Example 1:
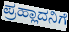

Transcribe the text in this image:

ಪ್ರಹ್ಲಾದನಿಗೆ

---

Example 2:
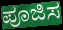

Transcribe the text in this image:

ಪೂಜಿಸ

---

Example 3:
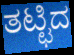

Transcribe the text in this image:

ತಟ್ಟಿದ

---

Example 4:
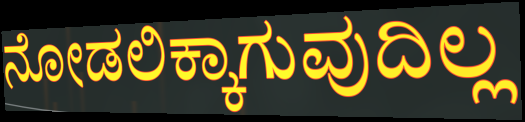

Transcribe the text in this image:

ನೋಡಲಿಕ್ಕಾಗುವುದಿಲ್ಲ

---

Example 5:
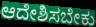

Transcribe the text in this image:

ಆದೇಶಿಸಬೇಕು